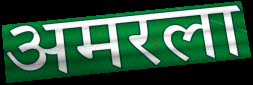
अमरला